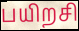
பயிறசி